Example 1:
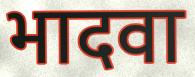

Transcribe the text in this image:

भादवा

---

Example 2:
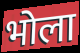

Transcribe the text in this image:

भोला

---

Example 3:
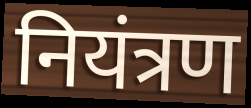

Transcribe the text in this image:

नियंत्रण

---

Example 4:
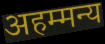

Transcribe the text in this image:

अहम्मन्य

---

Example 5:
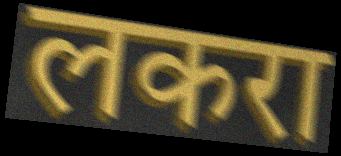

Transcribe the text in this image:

लकरा